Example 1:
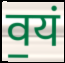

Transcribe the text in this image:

व॒यं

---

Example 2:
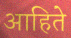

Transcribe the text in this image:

आहिते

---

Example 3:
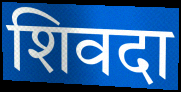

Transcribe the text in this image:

शिवदा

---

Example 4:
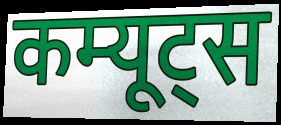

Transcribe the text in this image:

कम्यूट्स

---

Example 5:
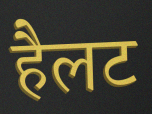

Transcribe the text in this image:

हैलट